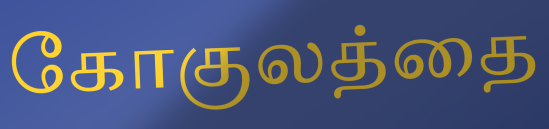
கோகுலத்தை